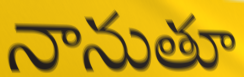
నానుతూ